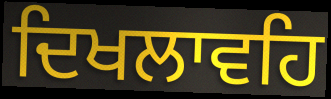
ਦਿਖਲਾਵਹਿ